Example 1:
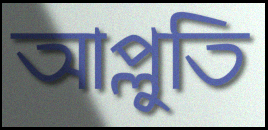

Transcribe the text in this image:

আপ্লুতি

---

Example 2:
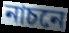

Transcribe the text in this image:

নাচনে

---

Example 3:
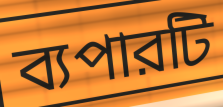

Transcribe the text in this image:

ব্যপারটি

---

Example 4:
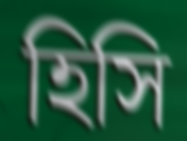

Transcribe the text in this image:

হিসি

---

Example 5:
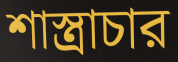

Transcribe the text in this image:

শাস্ত্রাচার